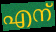
എന്